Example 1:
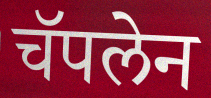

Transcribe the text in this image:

चॅपलेन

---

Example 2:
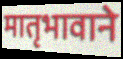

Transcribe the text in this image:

मातृभावाने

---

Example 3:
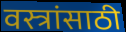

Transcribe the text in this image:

वस्त्रांसाठी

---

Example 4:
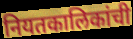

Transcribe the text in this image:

नियतकालिकांची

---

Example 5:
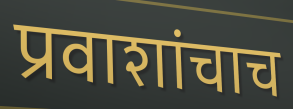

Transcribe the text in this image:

प्रवाशांचाच